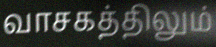
வாசகத்திலும்